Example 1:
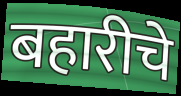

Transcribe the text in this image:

बहारीचे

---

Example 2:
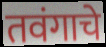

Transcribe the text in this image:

तवंगाचे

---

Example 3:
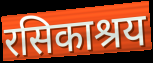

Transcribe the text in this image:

रसिकाश्रय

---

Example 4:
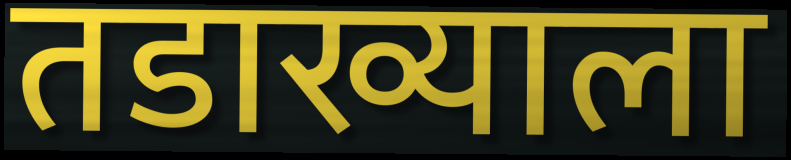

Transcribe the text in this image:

तडाख्याला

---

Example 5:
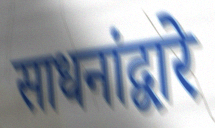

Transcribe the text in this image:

साधनांद्वारे